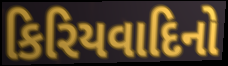
કિરિયવાદિનો